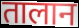
तालान